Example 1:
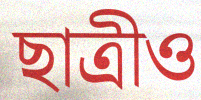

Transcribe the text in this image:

ছাত্রীও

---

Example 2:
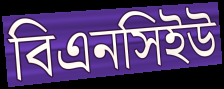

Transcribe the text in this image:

বিএনসিইউ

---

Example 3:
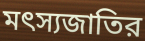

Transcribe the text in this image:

মৎস্যজাতির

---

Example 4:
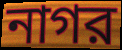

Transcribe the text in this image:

নাগর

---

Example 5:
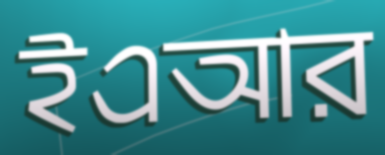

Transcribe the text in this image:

ইএআর